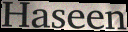
Haseen